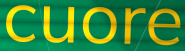
cuore